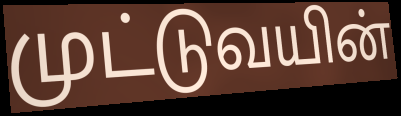
முட்டுவயின்